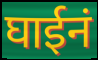
घाईनं